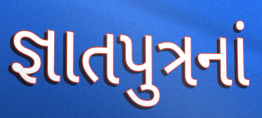
જ્ઞાતપુત્રનાં